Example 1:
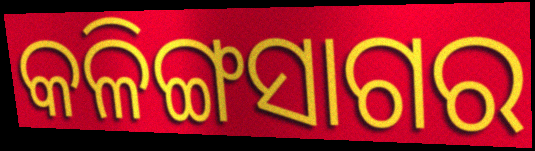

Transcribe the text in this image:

କଳିଙ୍ଗସାଗର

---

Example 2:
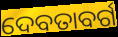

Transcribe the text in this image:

ଦେବତାବର୍ଗ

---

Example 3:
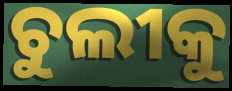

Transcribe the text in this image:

ଚୁଲୀକୁ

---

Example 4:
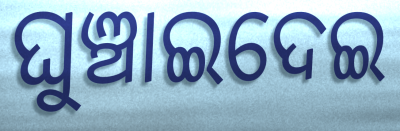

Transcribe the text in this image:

ଘୁଞ୍ଚାଇଦେଇ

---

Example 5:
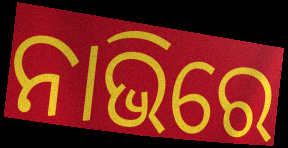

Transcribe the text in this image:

ନାଭିରେ